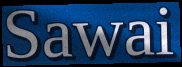
Sawai